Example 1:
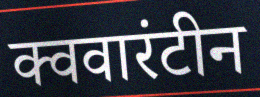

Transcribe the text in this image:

क्ववारंटीन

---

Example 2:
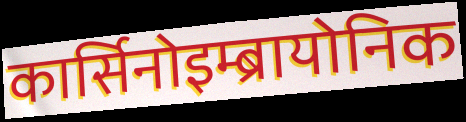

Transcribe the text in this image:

कार्सिनोइम्ब्रायोनिक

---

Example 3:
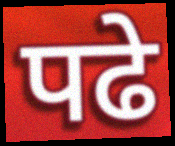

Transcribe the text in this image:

पढे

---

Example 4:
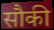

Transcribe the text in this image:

सौकी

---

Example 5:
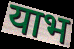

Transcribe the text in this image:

याभ